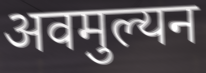
अवमुल्यन